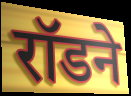
रॉडने